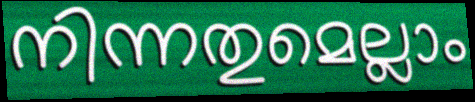
നിന്നതുമെല്ലാം